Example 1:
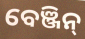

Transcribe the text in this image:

ବେଞ୍ଜିନ୍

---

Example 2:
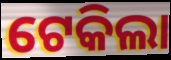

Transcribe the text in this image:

ଟେକିଲା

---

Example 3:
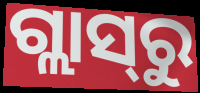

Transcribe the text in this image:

ଗ୍ଲାସ୍‍ରୁ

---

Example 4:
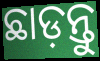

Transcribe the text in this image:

ଛାଡ଼ନ୍ତୁ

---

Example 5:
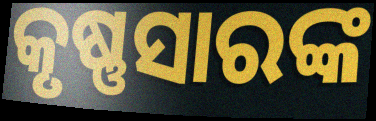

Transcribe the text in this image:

କୃଷ୍ଣସାରଙ୍କ